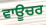
ਵਾਊਚਰ